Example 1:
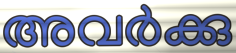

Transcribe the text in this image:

അവർക്കു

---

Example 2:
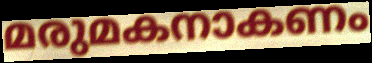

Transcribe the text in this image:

മരുമകനാകണം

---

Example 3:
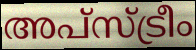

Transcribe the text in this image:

അപ്സ്ട്രീം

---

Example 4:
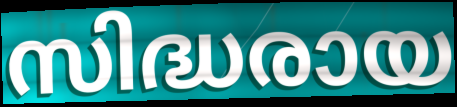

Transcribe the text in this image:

സിദ്ധരായ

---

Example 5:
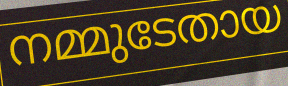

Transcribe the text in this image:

നമ്മുടേതായ